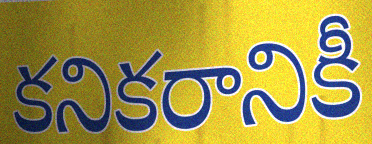
కనికరానికీ